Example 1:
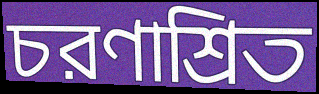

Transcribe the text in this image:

চরণাশ্রিত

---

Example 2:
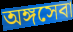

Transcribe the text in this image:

অঙ্গসেবা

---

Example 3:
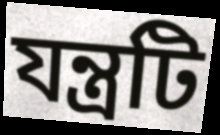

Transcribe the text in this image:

যন্ত্রটি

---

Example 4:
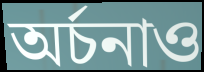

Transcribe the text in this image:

অর্চনাও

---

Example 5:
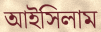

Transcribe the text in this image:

আইসিলাম